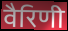
वैरिणी